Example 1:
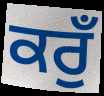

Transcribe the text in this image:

ਕਰੁਁ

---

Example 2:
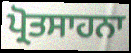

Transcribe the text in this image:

ਪ੍ਰੋਤਸਾਹਨਾ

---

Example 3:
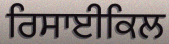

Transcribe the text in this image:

ਰਿਸਾਈਕਿਲ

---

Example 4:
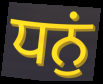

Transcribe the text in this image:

ਧਨੁਂ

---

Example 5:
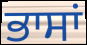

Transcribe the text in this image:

ਭਾਸਾਂ